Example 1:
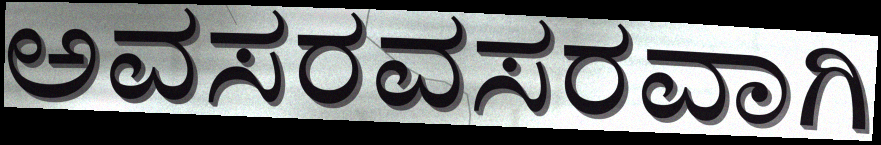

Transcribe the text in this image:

ಅವಸರವಸರವಾಗಿ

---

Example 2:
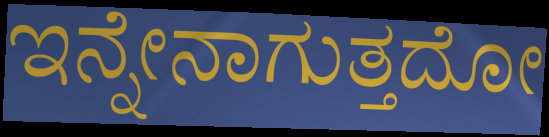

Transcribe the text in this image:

ಇನ್ನೇನಾಗುತ್ತದೋ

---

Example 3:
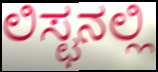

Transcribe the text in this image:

ಲಿಸ್ಟನಲ್ಲಿ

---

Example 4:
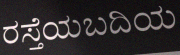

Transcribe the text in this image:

ರಸ್ತೆಯಬದಿಯ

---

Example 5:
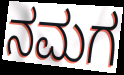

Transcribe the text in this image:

ನಮಗ